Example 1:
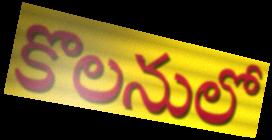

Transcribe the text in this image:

కొలనులో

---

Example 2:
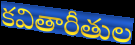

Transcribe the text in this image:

కవితారీతుల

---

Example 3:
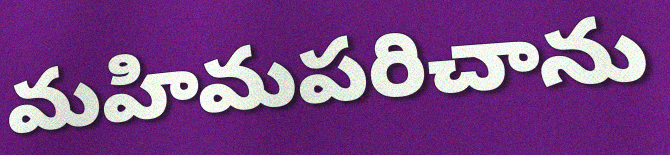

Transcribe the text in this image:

మహిమపరిచాను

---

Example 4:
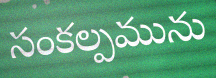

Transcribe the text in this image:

సంకల్పమును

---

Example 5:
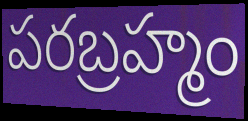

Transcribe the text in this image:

పరబ్రహ్మం